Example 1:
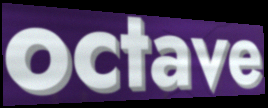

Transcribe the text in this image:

octave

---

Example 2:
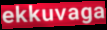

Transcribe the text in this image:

ekkuvaga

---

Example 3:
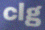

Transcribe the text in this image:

clg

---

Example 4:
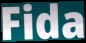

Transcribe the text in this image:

Fida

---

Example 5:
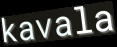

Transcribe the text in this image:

kavala